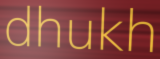
dhukh